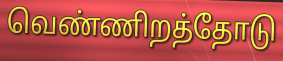
வெண்ணிறத்தோடு